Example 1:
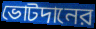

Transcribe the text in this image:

ভোটদানের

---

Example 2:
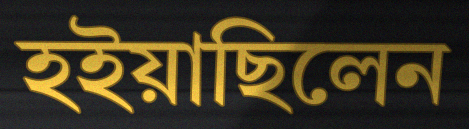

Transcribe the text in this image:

হইয়াছিলেন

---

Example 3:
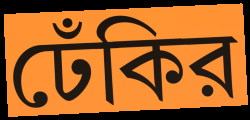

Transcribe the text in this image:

ঢেঁকির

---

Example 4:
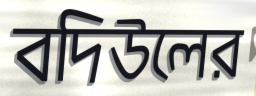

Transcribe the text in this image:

বদিউলের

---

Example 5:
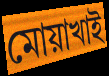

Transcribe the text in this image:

মোয়াখাই